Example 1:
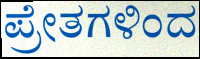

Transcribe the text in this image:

ಪ್ರೇತಗಳಿಂದ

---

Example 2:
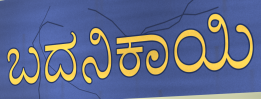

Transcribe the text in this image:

ಬದನಿಕಾಯಿ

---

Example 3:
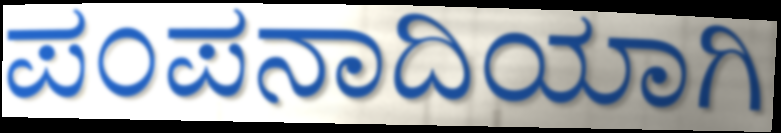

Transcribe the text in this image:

ಪಂಪನಾದಿಯಾಗಿ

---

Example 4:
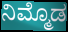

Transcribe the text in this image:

ನಿಮ್ಮೊಡ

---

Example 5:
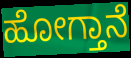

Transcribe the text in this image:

ಹೋಗ್ತಾನೆ